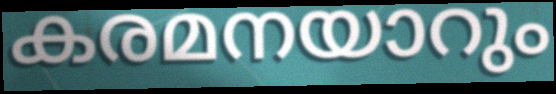
കരമനയാറും